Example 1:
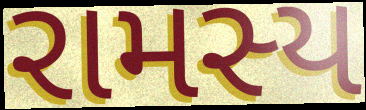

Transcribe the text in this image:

રામસ્ય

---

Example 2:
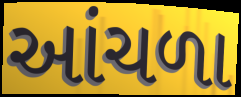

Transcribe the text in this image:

આંચળા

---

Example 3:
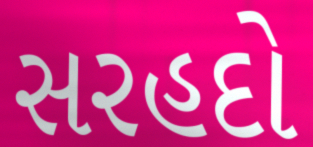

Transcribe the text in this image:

સરહદો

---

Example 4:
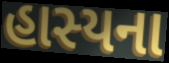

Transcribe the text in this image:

હાસ્યના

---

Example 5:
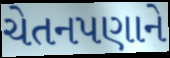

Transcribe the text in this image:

ચેતનપણાને